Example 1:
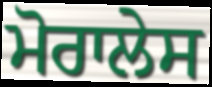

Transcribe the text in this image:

ਮੋਰਾਲੇਸ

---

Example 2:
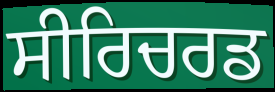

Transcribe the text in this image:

ਸੀਰਿਚਰਡ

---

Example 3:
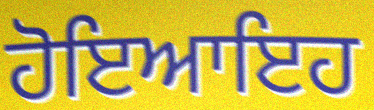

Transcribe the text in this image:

ਹੋਇਆਇਹ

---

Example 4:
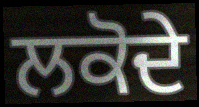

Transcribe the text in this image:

ਲਕੋਦੇ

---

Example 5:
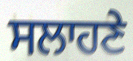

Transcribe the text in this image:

ਸਲਾਹਣੇ